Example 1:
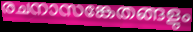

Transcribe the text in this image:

രചനാസങ്കേതങ്ങളും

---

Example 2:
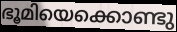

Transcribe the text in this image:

ഭൂമിയെക്കൊണ്ടു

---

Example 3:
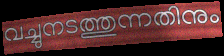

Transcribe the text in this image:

വച്ചുനടത്തുന്നതിനും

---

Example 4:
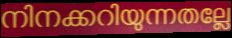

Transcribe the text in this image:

നിനക്കറിയുന്നതല്ലേ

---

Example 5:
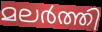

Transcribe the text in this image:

മലർത്തി